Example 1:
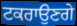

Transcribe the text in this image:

ਟਕਰਾਉਣਗੇ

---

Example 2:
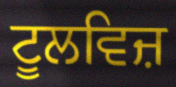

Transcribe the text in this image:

ਟੂਲਵਿਜ਼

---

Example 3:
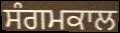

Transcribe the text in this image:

ਸੰਗਮਕਾਲ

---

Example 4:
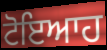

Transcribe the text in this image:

ਟੋਇਆਹ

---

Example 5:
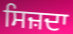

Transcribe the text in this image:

ਸਿਜ਼ਦਾ